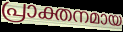
പ്രാക്തനമായ